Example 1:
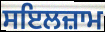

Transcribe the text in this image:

ਸਇਲਜ਼ਾਮ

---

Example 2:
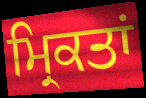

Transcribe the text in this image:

ਮ੍ਰਿਕਤਾਂ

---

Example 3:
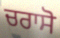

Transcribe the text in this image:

ਚਰਾਸੋ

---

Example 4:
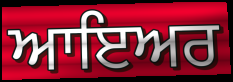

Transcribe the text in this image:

ਆਇਅਰ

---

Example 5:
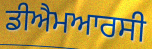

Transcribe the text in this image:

ਡੀਐਮਆਰਸੀ